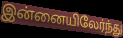
இன்னையிலேர்ந்து